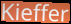
Kieffer